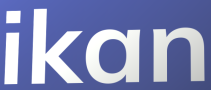
ikan